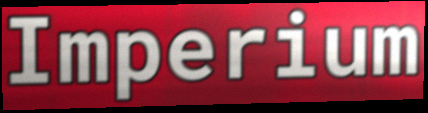
Imperium